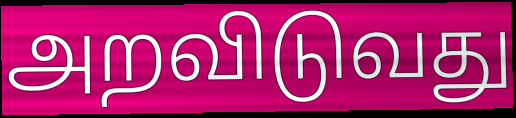
அறவிடுவது